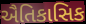
ઐતિકાસિક